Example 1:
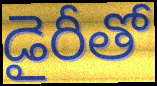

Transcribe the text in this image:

డైరీతో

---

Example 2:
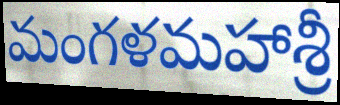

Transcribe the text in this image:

మంగళమహాశ్రీ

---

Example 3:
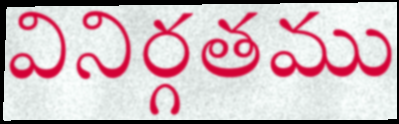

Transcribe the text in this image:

వినిర్గతము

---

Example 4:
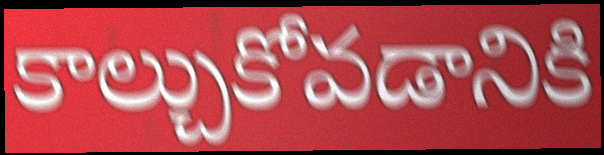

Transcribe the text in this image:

కాల్చుకోవడానికి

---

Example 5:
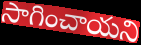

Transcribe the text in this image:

సాగించాయని